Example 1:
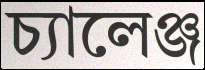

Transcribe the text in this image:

চ্যালেঞ্জ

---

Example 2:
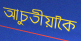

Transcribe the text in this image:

আচুতীয়াকৈ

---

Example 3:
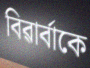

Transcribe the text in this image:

বিৱাৰ্বাকে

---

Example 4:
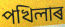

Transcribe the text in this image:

পখিলাৰ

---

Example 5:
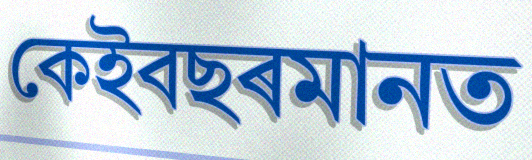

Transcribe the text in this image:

কেইবছৰমানত